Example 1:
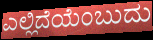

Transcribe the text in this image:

ಎಲ್ಲಿದೆಯೆಂಬುದು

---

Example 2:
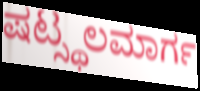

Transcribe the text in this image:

ಷಟ್ಸ್ಥಲಮಾರ್ಗ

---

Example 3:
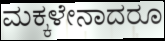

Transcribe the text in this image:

ಮಕ್ಕಳೇನಾದರೂ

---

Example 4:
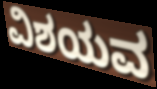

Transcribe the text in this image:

ವಿಶಯವ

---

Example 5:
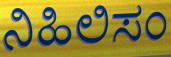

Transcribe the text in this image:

ನಿಹಿಲಿಸಂ